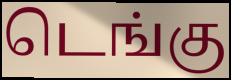
டெங்கு